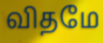
விதமே